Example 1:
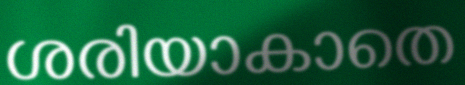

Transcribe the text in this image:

ശരിയാകാതെ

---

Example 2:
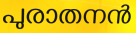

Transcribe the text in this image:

പുരാതനൻ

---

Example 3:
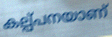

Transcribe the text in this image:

കല്പ്പനയാണ്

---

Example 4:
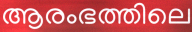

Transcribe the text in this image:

ആരംഭത്തിലെ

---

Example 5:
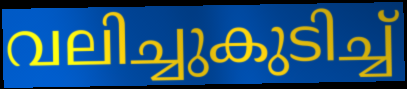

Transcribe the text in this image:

വലിച്ചുകുടിച്ച്